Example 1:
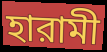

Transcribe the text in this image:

হারামী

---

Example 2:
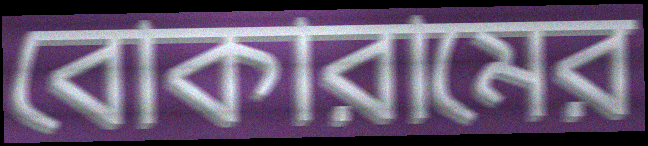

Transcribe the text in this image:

বোকারামের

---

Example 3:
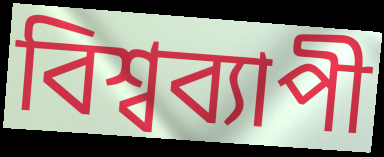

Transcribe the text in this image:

বিশ্বব্যাপী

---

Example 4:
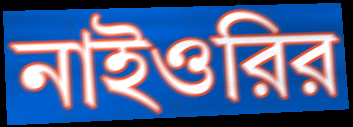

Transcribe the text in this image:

নাইওরির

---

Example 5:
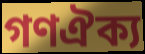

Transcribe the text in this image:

গণঐক্য